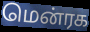
மென்ரக